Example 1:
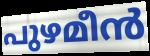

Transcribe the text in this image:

പുഴമീൻ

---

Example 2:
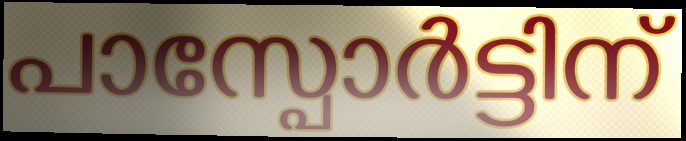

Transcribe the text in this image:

പാസ്പോർട്ടിന്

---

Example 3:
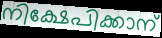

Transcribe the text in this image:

നിക്ഷേപിക്കാന്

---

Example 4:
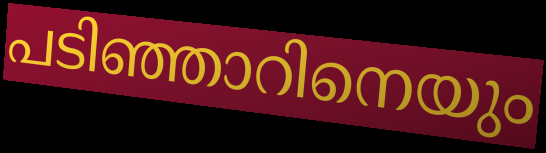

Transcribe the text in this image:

പടിഞ്ഞാറിനെയും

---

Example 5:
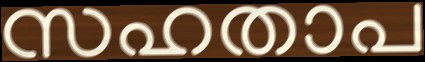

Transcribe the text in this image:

സഹതാപ